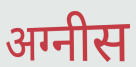
अग्नीस